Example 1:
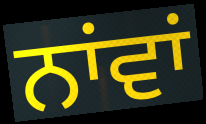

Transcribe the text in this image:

ਨਾਂਵਾਂ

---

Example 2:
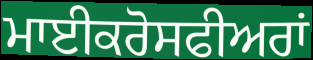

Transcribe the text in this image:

ਮਾਈਕਰੋਸਫੀਅਰਾਂ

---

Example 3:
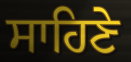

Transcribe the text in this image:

ਸਾਹਿਣੇ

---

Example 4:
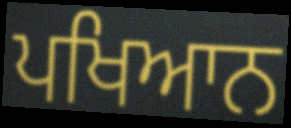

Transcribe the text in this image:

ਪਖਿਆਨ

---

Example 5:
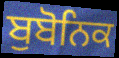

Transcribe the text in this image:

ਬੁਬੋਨਿਕ